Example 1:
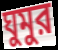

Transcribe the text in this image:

ঘুমুর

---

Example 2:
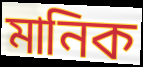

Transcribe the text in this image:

মানিক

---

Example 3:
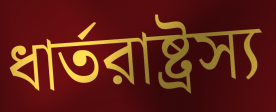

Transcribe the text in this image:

ধার্তরাষ্ট্রস্য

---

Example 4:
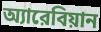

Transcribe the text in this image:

অ্যারেবিয়ান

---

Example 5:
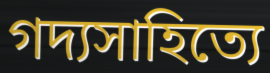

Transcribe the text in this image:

গদ্যসাহিত্যে